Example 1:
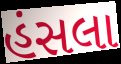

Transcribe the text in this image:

હંસલા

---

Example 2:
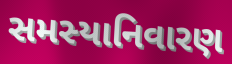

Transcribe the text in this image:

સમસ્યાનિવારણ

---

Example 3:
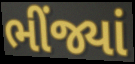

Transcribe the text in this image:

ભીંજ્યાં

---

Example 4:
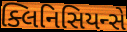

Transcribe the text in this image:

ક્લિનિસિયન્સે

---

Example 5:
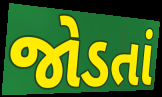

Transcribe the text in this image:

જોડતાં